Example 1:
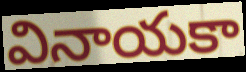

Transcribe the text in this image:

వినాయకా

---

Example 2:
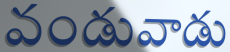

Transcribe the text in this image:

వండువాడు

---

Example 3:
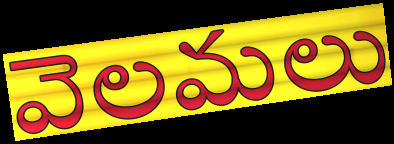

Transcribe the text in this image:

వెలమలు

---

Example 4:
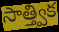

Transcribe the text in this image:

సాత్త్విక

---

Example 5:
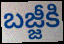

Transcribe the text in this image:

బజ్జీకి